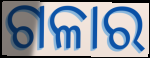
ଗଳାର